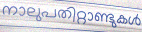
നാലുപതിറ്റാണ്ടുകൾ